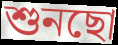
শুনছো